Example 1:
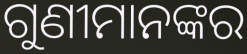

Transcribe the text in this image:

ଗୁଣୀମାନଙ୍କର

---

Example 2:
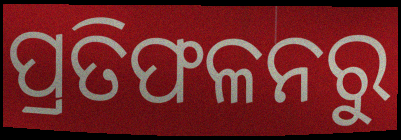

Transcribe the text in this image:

ପ୍ରତିଫଳନରୁ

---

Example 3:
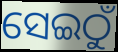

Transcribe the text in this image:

ସେଇଠୁଁ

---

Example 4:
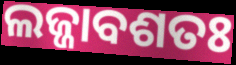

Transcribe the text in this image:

ଲଜ୍ଜାବଶତଃ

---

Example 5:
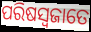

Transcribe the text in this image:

ପରିଷସ୍ଵଜାତେ